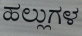
ಹಲ್ಲುಗಳ